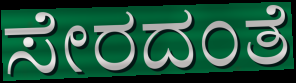
ಸೇರದಂತೆ